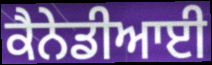
ਕੈਨੇਡੀਆਈ